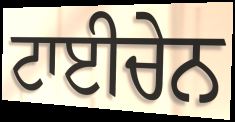
ਟਾਈਚੇਨ